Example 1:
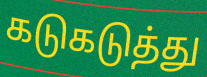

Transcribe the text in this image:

கடுகடுத்து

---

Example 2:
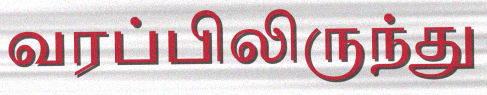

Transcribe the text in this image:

வரப்பிலிருந்து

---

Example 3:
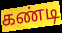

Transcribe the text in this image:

கண்டி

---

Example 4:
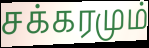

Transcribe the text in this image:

சக்கரமும்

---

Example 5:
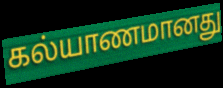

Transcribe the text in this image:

கல்யாணமானது